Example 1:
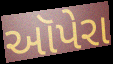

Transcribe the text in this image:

ઑપેરા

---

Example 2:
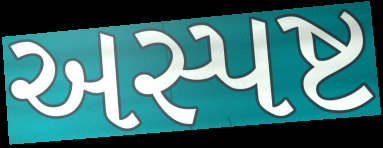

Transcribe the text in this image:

અસ્પષ્ટ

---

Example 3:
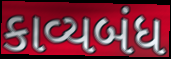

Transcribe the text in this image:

કાવ્યબંધ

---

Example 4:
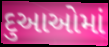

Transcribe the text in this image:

દુઆઓમાં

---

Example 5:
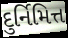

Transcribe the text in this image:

દુર્નિમિત્ત